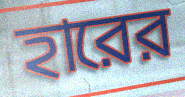
হারের